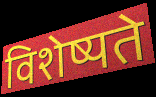
विशेष्यते